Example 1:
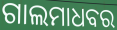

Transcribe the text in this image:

ଗାଲମାଧବର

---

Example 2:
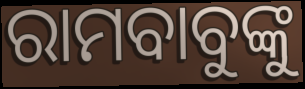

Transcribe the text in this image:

ରାମବାବୁଙ୍କୁ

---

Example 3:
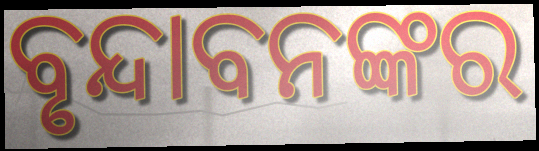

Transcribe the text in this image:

ବୃନ୍ଦାବନଙ୍କର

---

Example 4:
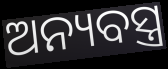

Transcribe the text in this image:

ଅନ୍ୟବସ୍ତ୍ର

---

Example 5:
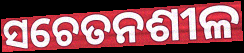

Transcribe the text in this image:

ସଚେତନଶୀଳ